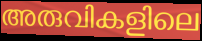
അരുവികളിലെ